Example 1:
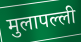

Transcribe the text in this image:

मुलापल्ली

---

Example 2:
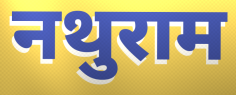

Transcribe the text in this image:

नथुराम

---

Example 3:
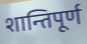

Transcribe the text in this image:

शान्तिपूर्ण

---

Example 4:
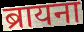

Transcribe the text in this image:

ब्रायना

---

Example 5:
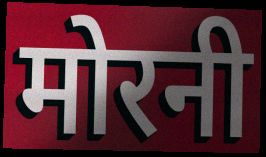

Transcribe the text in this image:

मोरनी